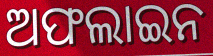
ଅଫଲାଇନ